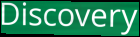
Discovery